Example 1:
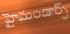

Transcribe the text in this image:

హైమండార్ఫ్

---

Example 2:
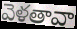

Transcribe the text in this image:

వెళతావా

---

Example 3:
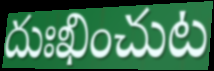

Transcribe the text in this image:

దుఃఖించుట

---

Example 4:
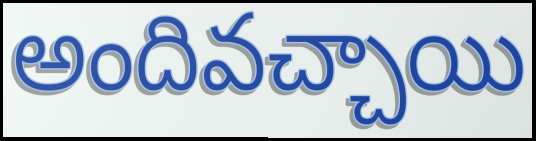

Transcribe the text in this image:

అందివచ్చాయి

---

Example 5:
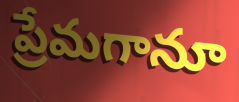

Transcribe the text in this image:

ప్రేమగానూ